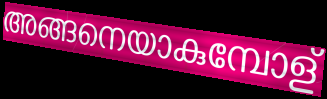
അങ്ങനെയാകുമ്പോള്